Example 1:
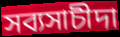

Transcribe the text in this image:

সব্যসাচীদা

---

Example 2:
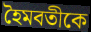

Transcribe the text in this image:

হৈমবতীকে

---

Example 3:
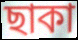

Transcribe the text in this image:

ছাকা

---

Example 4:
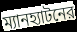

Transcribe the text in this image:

ম্যানহ্যাটনের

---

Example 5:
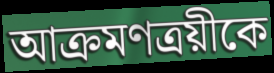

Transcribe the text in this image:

আক্রমণত্রয়ীকে